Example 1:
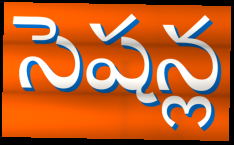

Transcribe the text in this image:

సెషన్ల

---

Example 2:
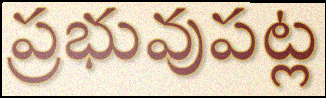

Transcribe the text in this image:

ప్రభువుపట్ల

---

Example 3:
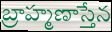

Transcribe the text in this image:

బ్రాహ్మణాస్తేన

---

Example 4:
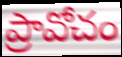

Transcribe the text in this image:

ప్రావోచం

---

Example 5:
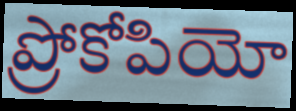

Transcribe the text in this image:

ప్రోకోపియో